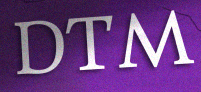
DTM